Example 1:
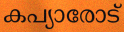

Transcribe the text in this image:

കപ്യാരോട്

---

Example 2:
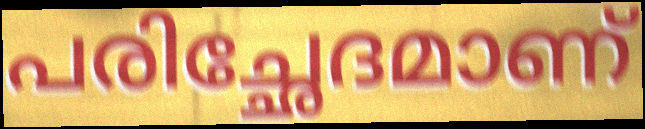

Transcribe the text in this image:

പരിച്ഛേദമാണ്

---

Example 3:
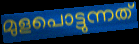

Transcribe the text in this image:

മുളപൊട്ടുന്നത്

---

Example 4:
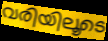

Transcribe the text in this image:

വരിയിലൂടെ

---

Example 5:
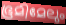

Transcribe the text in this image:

ഭൂമിമേലും